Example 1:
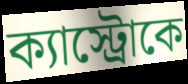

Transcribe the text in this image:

ক্যাস্ট্রোকে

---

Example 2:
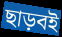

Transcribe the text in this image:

ছাড়বই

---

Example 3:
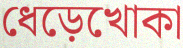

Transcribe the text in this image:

ধেড়েখোকা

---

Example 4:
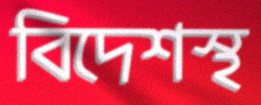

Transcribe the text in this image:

বিদেশস্থ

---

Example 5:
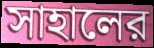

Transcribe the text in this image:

সাহালের